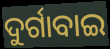
ଦୁର୍ଗାବାଇ